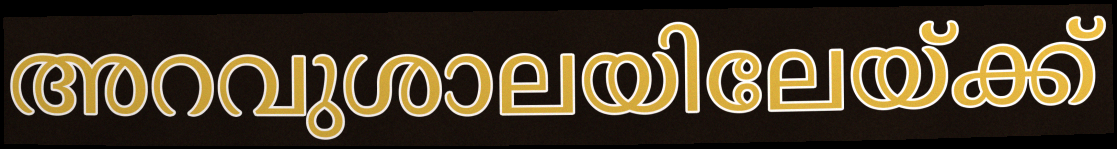
അറവുശാലയിലേയ്ക്ക്